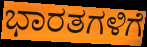
ಭಾರತಗಳಿಗೆ